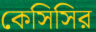
কেসিসির